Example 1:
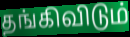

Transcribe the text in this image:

தங்கிவிடும்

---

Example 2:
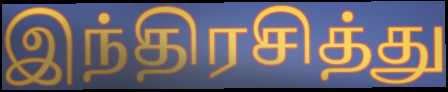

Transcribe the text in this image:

இந்திரசித்து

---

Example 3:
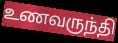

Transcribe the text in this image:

உணவருந்தி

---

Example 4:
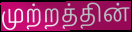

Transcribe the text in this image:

முற்றத்தின்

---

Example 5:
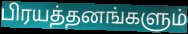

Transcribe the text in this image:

பிரயத்தனங்களும்